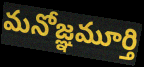
మనోజ్ఞమూర్తి